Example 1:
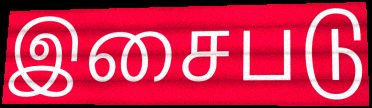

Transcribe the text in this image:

இசைபடு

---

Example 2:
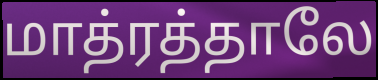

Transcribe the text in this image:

மாத்ரத்தாலே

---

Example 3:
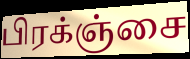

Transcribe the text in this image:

பிரக்ஞ்சை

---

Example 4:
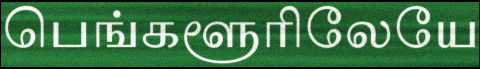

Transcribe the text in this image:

பெங்களூரிலேயே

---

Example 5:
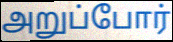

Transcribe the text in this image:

அறுப்போர்